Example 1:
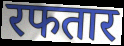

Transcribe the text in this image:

रफतार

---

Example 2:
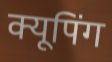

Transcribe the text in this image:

क्यूपिंग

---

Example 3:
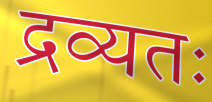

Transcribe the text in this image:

द्रव्यतः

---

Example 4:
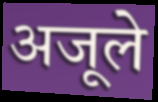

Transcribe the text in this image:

अजूले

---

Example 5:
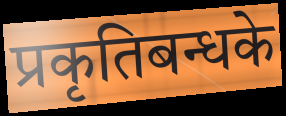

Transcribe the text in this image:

प्रकृतिबन्धके